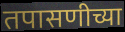
तपासणीच्या